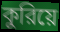
কুরিয়ে